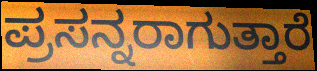
ಪ್ರಸನ್ನರಾಗುತ್ತಾರೆ